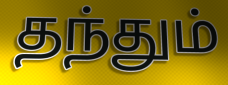
தந்தும்